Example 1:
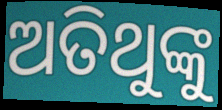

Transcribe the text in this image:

ଅତିଥୁଙ୍କୁ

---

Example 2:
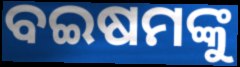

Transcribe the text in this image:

ବଇଷମଙ୍କୁ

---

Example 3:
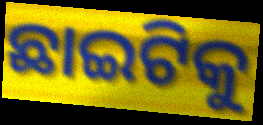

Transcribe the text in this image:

ଛାଇଟିକୁ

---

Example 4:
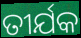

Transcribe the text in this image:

ତୀର୍ଯକ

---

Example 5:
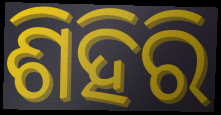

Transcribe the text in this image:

ଶିହିରି